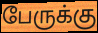
பேருக்கு